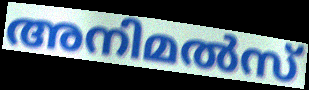
അനിമൽസ്